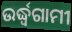
ଉର୍ଦ୍ଧ୍ୱଗାମୀ